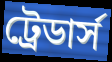
ট্রেডার্স